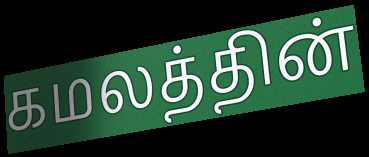
கமலத்தின்